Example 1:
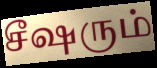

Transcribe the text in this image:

சீஷரும்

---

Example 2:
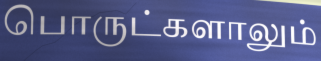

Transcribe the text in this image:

பொருட்களாலும்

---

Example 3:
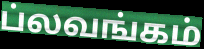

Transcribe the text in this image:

ப்லவங்கம்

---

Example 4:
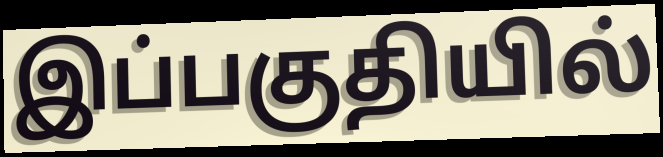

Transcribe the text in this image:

இப்பகுதியில்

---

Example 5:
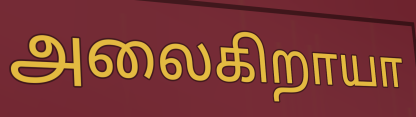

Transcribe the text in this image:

அலைகிறாயா